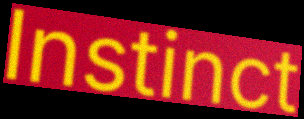
lnstinct